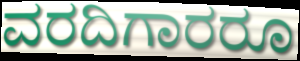
ವರದಿಗಾರರೂ